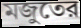
মজুতের